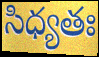
సిధ్యతః